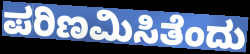
ಪರಿಣಮಿಸಿತೆಂದು